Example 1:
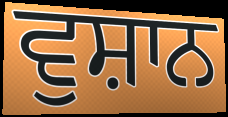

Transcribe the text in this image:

ਵੁਸ਼ਾਨ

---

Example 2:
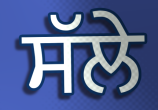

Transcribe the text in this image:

ਸੱਲੇ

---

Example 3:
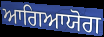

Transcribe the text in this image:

ਆਗਿਆਯੋਗ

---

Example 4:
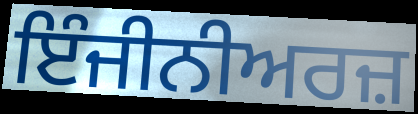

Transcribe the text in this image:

ਇੰਜੀਨੀਅਰਜ਼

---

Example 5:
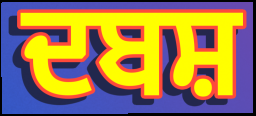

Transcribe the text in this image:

ਦਬਸ਼